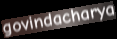
govindacharya